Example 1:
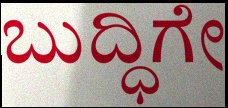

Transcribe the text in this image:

ಬುದ್ಧಿಗೇ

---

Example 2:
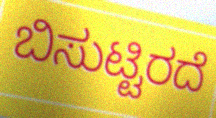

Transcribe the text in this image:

ಬಿಸುಟ್ಟಿರದೆ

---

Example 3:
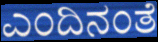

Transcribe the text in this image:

ಎಂದಿನಂತೆ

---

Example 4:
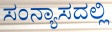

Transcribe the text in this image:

ಸಂನ್ಯಾಸದಲ್ಲಿ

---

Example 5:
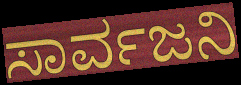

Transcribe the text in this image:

ಸಾರ್ವಜನಿ